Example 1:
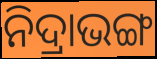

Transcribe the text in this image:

ନିଦ୍ରାଭଙ୍ଗ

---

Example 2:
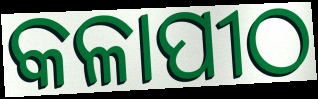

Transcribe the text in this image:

କଳାପୀଠ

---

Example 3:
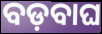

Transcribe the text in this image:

ବଡ଼ବାଘ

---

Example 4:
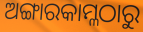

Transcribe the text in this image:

ଅଙ୍ଗାରକାମ୍ଳଠାରୁ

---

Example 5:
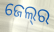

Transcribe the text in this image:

ଜେଲ୍‍ର